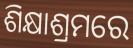
ଶିକ୍ଷାଶ୍ରମରେ